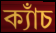
ক্যাঁচ